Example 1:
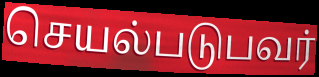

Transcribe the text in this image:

செயல்படுபவர்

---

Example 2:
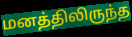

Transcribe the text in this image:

மனத்திலிருந்த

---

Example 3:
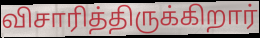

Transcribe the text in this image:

விசாரித்திருக்கிறார்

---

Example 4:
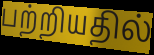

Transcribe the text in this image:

பற்றியதில்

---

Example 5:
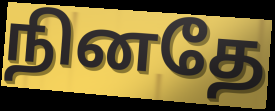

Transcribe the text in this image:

நினதே